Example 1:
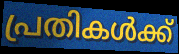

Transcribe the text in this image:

പ്രതികൾക്ക്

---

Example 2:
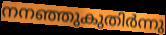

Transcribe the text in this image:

നനഞ്ഞുകുതിർന്നു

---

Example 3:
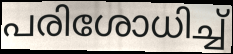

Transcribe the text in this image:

പരിശോധിച്ച്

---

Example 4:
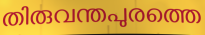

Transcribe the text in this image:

തിരുവന്തപുരത്തെ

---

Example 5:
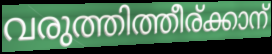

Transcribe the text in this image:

വരുത്തിത്തീര്ക്കാന്